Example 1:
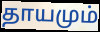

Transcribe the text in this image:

தாயமும்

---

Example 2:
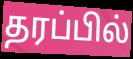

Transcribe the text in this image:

தரப்பில்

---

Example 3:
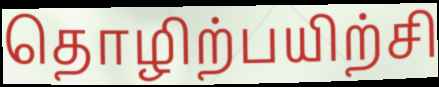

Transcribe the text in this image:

தொழிற்பயிற்சி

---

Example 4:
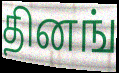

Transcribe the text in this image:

தினங்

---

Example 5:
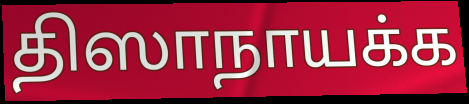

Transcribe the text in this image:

திஸாநாயக்க